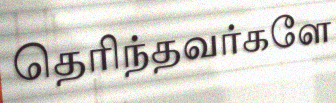
தெரிந்தவர்களே